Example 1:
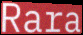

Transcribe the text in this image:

Rara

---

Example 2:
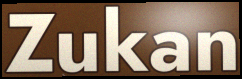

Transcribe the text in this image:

Zukan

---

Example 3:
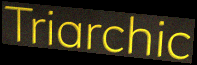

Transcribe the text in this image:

Triarchic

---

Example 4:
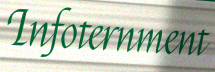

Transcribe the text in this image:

Infoternment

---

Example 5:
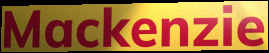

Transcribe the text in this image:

Mackenzie